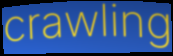
crawling